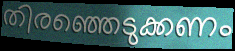
തിരഞ്ഞെടുക്കണം